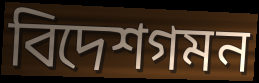
বিদেশগমন